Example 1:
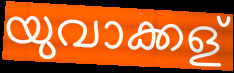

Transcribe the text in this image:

യുവാക്കള്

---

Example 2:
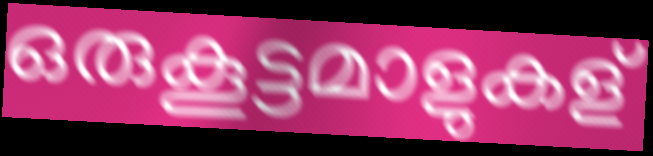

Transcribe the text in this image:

ഒരുകൂട്ടമാളുകള്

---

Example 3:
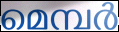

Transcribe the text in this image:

മെമ്പർ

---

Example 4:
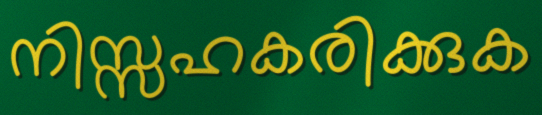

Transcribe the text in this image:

നിസ്സഹകരിക്കുക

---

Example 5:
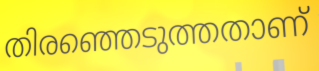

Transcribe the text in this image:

തിരഞ്ഞെടുത്തതാണ്